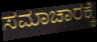
ಸಮಾಚಾರಕ್ಕೆ